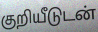
குறியீடுடன்